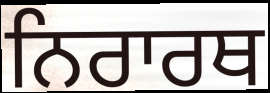
ਨਿਰਾਰਥ